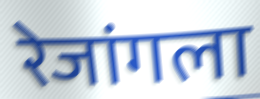
रेजांगला